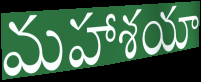
మహాశయా